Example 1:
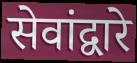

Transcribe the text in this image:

सेवांद्वारे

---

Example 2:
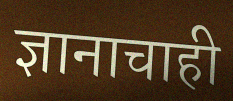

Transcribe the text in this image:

ज्ञानाचाही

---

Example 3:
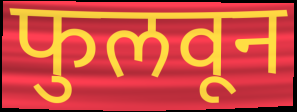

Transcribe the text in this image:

फुलवून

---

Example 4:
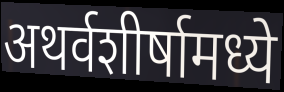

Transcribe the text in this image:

अथर्वशीर्षामध्ये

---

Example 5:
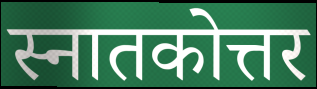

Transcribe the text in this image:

स्नातकोत्तर